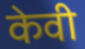
केवी